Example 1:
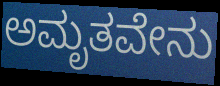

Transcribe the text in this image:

ಅಮೃತವೇನು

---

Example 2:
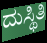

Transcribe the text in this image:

ದುಸ್ಥಿತಿ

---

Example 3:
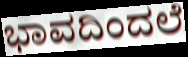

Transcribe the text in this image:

ಭಾವದಿಂದಲೆ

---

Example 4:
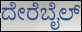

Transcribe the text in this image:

ದೇರೆಬೈಲ್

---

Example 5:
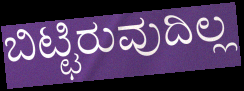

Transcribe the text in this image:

ಬಿಟ್ಟಿರುವುದಿಲ್ಲ